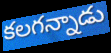
కలగన్నాడు